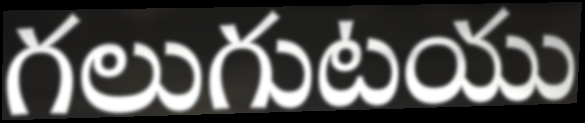
గలుగుటయు